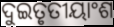
ଦୁଇତୃତୀୟାଂଶ